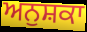
ਅਨੁਸ਼ਕਾ